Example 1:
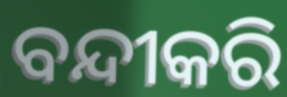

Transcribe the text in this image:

ବନ୍ଦୀକରି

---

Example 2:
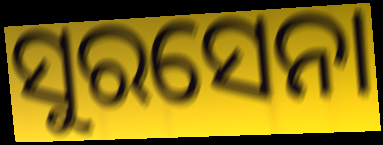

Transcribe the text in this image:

ସୁରସେନା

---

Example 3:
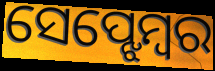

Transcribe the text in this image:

ସେପ୍ଝେମ୍ବର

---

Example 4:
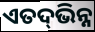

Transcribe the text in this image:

ଏତଦ୍‌ଭିନ୍ନ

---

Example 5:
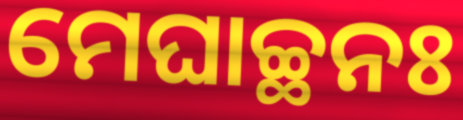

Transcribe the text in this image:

ମେଘାଚ୍ଛନଃ